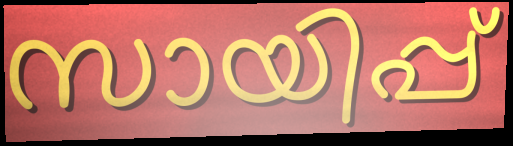
സായിപ്പ്